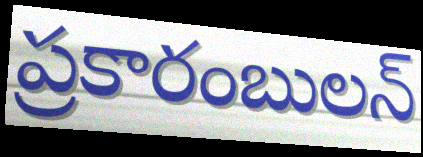
ప్రకారంబులన్